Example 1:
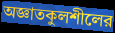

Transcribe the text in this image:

অজ্ঞাতকুলশীলের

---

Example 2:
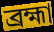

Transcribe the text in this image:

ব্রহ্মা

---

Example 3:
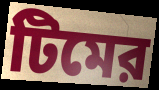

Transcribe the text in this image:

টিমের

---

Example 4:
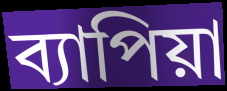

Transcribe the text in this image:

ব্যাপিয়া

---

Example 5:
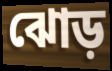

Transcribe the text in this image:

ঝোড়